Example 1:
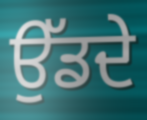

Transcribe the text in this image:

ਉੱਡਦੇ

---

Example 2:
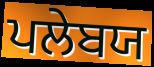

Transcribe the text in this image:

ਪਲੇਬਯ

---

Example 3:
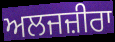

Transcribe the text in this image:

ਅਲਜਜ਼ੀਰਾ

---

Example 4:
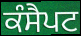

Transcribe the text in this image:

ਕੰਸੈਪਟ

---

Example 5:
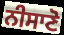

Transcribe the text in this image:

ਨੀਸਾਣੋ